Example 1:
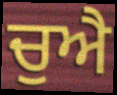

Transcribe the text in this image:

ਚੁਐ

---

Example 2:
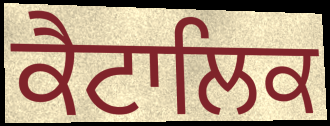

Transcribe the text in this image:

ਕੈਟਾਲਿਕ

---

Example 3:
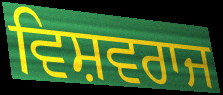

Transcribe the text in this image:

ਵਿਸ਼ਵਰਾਜ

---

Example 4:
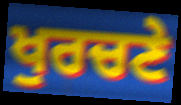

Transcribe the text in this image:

ਖੁਰਚਣੇ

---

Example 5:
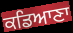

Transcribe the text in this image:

ਕਡਿਆਣਾ